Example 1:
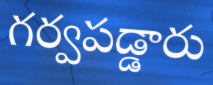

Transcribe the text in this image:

గర్వపడ్డారు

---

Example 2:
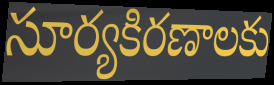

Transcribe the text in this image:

సూర్యకిరణాలకు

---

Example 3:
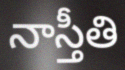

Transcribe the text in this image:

నాస్తీతి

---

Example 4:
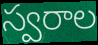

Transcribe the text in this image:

స్వరాల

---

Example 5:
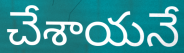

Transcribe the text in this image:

చేశాయనే